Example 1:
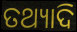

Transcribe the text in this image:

ତଥ୍ୟାଦି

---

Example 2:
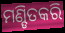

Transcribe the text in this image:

ମଣ୍ଡିତକରି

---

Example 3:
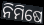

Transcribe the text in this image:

ନିମିଷେ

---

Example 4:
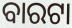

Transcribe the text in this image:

ବାରଟା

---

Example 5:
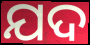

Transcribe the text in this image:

ଯଦ